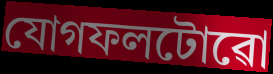
যোগফলটোৱো